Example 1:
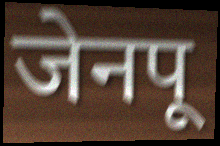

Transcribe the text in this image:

जेनपू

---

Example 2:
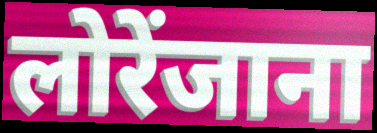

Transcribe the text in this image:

लोरेंजाना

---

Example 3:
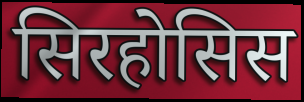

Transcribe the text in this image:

सिरहोसिस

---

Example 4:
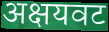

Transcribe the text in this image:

अक्षयवट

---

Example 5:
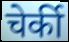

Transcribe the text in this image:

चेर्की